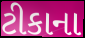
ટીકાના